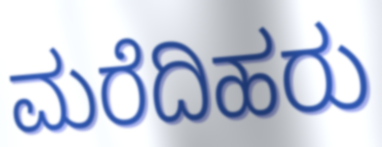
ಮರೆದಿಹರು